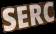
SERC